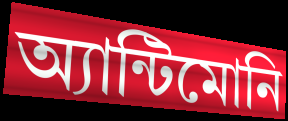
অ্যান্টিমোনি